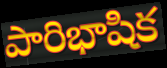
పారిభాషిక